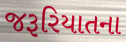
જરૂરિયાતના